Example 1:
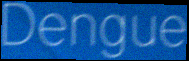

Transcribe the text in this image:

Dengue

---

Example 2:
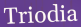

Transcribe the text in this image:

Triodia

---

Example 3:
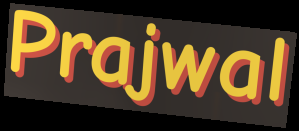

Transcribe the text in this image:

Prajwal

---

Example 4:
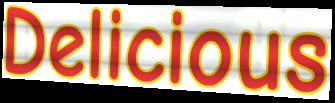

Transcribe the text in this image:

Delicious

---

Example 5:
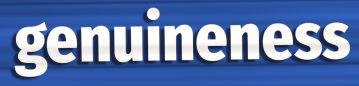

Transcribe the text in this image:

genuineness